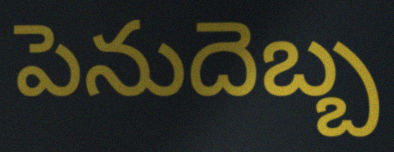
పెనుదెబ్బ